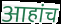
आहांच